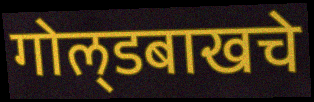
गोल्डबाखचे